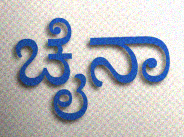
ಚೈನಾ